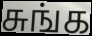
சுங்க